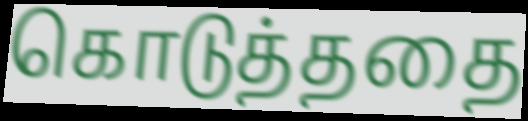
கொடுத்ததை